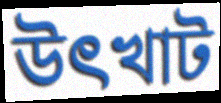
উৎখাট